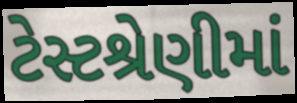
ટેસ્ટશ્રેણીમાં